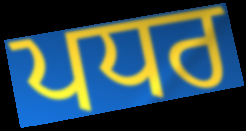
ਪਧਰ